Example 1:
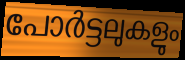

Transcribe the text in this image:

പോർട്ടലുകളും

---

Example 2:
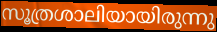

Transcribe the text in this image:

സൂത്രശാലിയായിരുന്നു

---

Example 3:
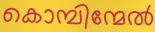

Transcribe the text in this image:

കൊമ്പിന്മേൽ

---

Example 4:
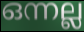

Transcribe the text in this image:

ഒന്നല്ല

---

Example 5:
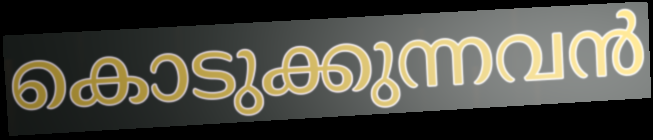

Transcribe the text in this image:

കൊടുക്കുന്നവൻ